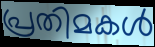
പ്രതിമകൾ